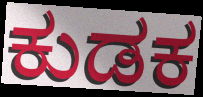
ಕುಡಕ